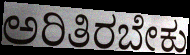
ಅರಿತಿರಬೇಕು